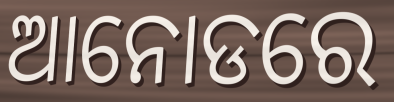
ଆନୋଡରେ